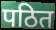
पठित